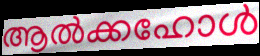
ആൽക്കഹോൾ